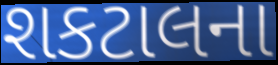
શકટાલના